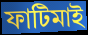
ফাটিমাই